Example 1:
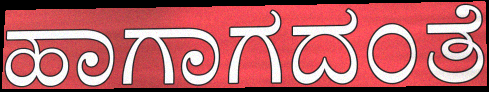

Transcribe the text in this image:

ಹಾಗಾಗದಂತೆ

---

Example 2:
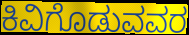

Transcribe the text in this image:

ಕಿವಿಗೊಡುವವರ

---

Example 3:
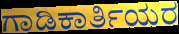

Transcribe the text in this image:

ಗಾಡಿಕಾರ್ತಿಯರ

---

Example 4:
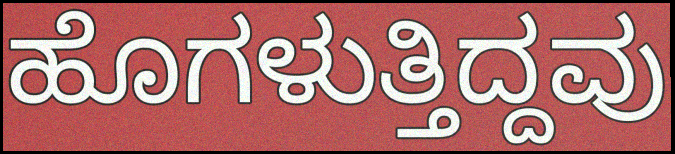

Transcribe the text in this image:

ಹೊಗಳುತ್ತಿದ್ದವು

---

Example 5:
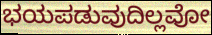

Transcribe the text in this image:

ಭಯಪಡುವುದಿಲ್ಲವೋ